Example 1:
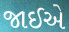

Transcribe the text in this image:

જાઈએ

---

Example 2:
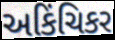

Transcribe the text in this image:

અકિંચિકર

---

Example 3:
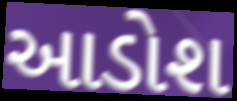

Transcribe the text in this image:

આડોશ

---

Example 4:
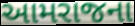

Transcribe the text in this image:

આમરાજના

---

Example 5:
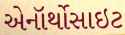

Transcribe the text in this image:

એનૉર્થોસાઇટ